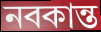
নবকান্ত